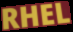
RHEL